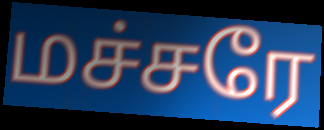
மச்சரே